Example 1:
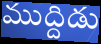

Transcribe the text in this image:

ముద్దిడు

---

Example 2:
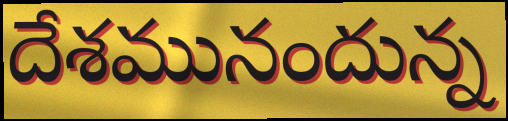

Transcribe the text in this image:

దేశమునందున్న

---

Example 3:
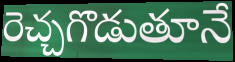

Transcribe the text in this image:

రెచ్చగొడుతూనే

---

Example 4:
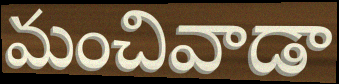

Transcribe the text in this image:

మంచివాడా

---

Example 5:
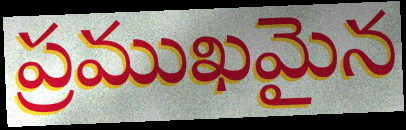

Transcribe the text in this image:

ప్రముఖమైన